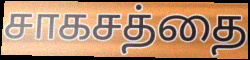
சாகசத்தை